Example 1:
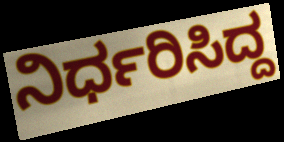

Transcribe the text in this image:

ನಿರ್ಧರಿಸಿದ್ದ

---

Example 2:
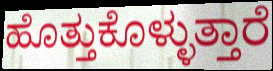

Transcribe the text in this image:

ಹೊತ್ತುಕೊಳ್ಳುತ್ತಾರೆ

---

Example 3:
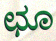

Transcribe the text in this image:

ಛೂ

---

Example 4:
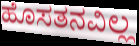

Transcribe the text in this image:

ಹೊಸತನವಿಲ್ಲ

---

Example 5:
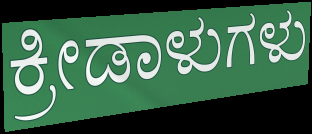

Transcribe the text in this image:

ಕ್ರೀಡಾಳುಗಳು